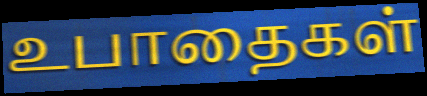
உபாதைகள்